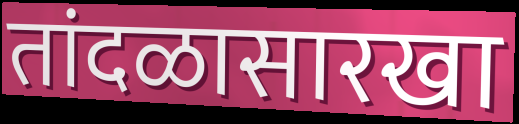
तांदळासारखा